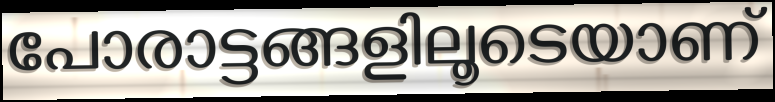
പോരാട്ടങ്ങളിലൂടെയാണ്